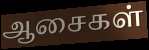
ஆசைகள்